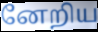
னேறிய